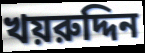
খয়রুদ্দিন